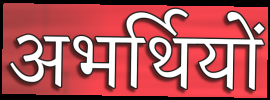
अभर्थियों